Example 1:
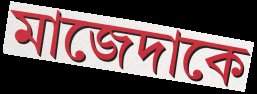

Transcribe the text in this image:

মাজেদাকে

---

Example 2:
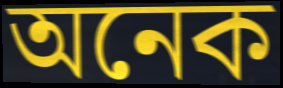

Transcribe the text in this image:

অনেক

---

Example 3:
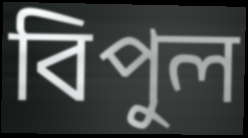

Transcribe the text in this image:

বিপুল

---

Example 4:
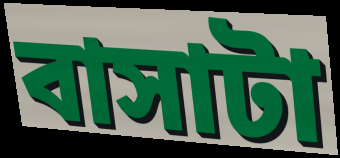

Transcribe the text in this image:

বাসাটা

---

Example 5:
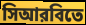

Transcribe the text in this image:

সিআরবিতে